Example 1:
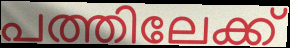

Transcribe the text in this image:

പത്തിലേക്ക്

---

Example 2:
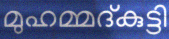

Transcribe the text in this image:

മുഹമ്മദ്കുട്ടി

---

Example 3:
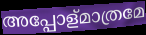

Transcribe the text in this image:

അപ്പോള്മാത്രമേ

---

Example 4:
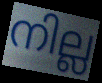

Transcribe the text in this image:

നില്ല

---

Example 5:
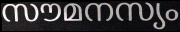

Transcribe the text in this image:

സൗമനസ്യം